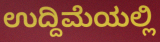
ಉದ್ದಿಮೆಯಲ್ಲಿ